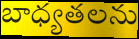
బాధ్యతలను